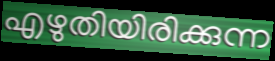
എഴുതിയിരിക്കുന്ന